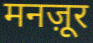
मनज़ूर